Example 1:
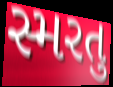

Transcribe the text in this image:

સ્મરતુ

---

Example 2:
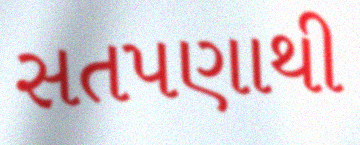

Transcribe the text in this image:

સતપણાથી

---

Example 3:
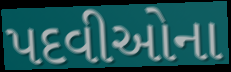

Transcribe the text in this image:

પદવીઓના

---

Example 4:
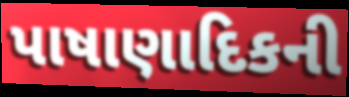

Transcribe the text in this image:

પાષાણાદિકની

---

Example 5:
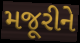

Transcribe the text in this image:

મજૂરીને